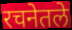
रचनेतले